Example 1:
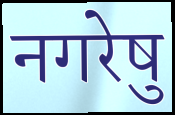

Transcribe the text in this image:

नगरेषु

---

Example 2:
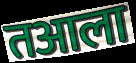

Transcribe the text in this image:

तआला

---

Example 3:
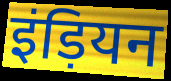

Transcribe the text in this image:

इंड़ियन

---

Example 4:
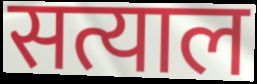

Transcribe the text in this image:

सत्याल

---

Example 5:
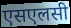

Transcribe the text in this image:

एसएलसी